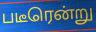
படீரென்று